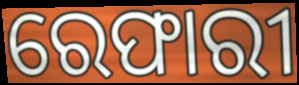
ରେଫାରୀ